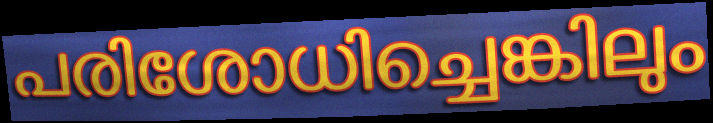
പരിശോധിച്ചെങ്കിലും